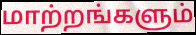
மாற்றங்களும்